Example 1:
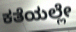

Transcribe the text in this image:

ಕತೆಯಲ್ಲೇ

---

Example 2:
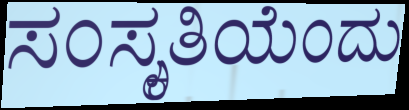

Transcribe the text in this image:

ಸಂಸ್ಕೃತಿಯೆಂದು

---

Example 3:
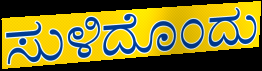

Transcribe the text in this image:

ಸುಳಿದೊಂದು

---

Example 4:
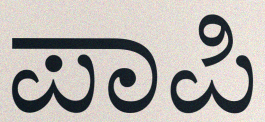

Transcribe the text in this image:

ಪಾಪಿ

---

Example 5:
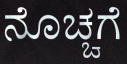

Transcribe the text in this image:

ನೊಚ್ಚಗೆ